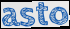
asto